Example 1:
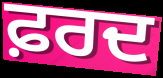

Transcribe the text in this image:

ਫ਼ਰਦ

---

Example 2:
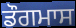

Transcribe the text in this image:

ਡੌਗਮਾਸ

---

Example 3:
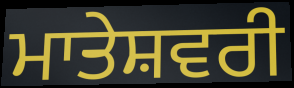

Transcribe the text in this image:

ਮਾਤੇਸ਼ਵਰੀ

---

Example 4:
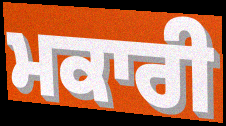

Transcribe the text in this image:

ਮਕਾਰੀ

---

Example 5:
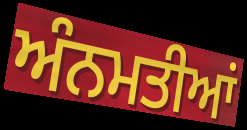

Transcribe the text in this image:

ਅੰਨਮਤੀਆਂ